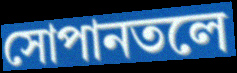
সোপানতলে